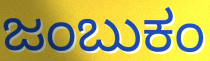
ಜಂಬುಕಂ